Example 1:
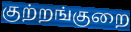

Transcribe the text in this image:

குற்றங்குறை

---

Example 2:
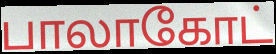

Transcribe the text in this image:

பாலாகோட்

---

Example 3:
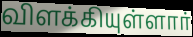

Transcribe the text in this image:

விளக்கியுள்ளார்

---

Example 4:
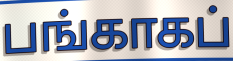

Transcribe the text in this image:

பங்காகப்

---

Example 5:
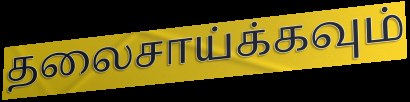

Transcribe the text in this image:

தலைசாய்க்கவும்